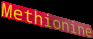
Methionine